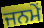
ਜਨਮੇਂ